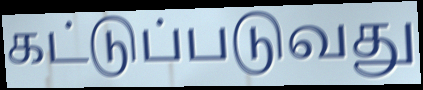
கட்டுப்படுவது